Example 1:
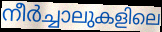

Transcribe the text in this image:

നീർച്ചാലുകളിലെ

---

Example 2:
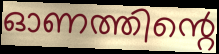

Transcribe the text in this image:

ഓണത്തിന്റെ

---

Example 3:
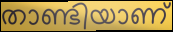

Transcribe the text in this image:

താണ്ടിയാണ്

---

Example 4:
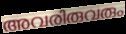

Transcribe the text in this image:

അവരിരുവരും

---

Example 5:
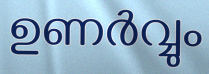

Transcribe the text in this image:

ഉണർവ്വും